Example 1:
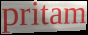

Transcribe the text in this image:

pritam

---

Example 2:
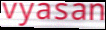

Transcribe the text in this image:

vyasan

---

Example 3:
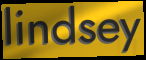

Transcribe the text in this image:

lindsey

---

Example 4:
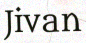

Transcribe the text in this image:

Jivan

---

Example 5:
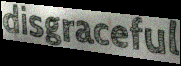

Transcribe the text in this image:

disgraceful